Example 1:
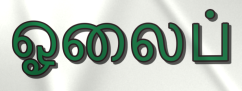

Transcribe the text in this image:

ஓலைப்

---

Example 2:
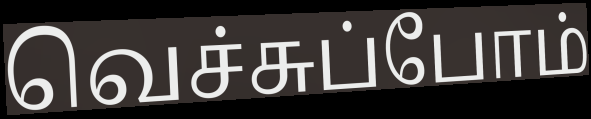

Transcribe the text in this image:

வெச்சுப்போம்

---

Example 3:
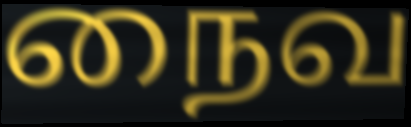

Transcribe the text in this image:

நைவ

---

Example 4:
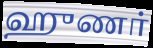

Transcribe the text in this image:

ஹுணர்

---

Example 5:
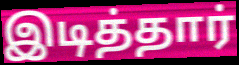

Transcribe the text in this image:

இடித்தார்